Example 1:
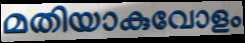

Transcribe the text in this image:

മതിയാകുവോളം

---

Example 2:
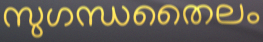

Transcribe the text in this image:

സുഗന്ധതൈലം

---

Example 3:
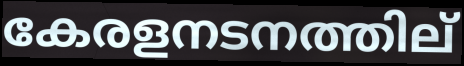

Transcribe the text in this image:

കേരളനടനത്തില്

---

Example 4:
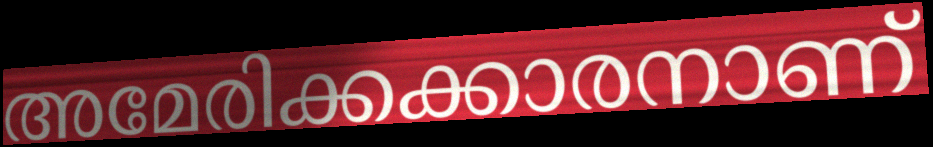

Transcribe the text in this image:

അമേരിക്കക്കാരനാണ്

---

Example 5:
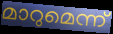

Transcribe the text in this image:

മാറുമെന്ന്